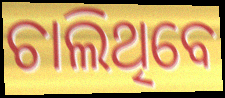
ଚାଲିଥିବେ